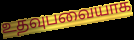
உதவுபவையாக